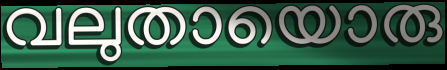
വലുതായൊരു